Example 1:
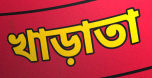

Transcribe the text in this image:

খাড়াতা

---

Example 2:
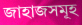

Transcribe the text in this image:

জাহাজসমূহ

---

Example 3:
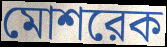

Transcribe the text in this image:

মোশরেক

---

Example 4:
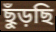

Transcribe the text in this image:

ছুঁড়ছি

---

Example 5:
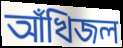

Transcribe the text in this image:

আঁখিজল